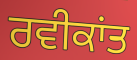
ਰਵੀਕਾਂਤ